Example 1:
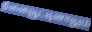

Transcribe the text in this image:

நினைவூட்டினாலும்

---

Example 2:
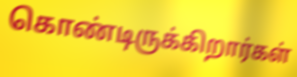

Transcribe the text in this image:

கொண்டிருக்கிறார்கள்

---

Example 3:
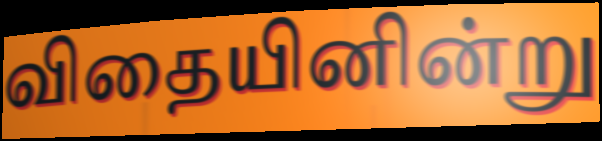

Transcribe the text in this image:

விதையினின்று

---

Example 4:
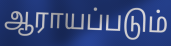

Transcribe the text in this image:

ஆராயப்படும்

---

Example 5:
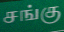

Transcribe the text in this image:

சங்கு